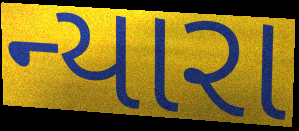
ન્યારા